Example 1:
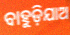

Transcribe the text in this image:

ବାହୁଡ଼ିଯାଅ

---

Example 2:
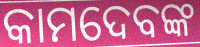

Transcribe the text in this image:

କାମଦେବଙ୍କ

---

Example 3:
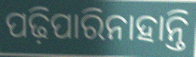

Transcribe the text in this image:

ପଢ଼ିପାରିନାହାନ୍ତି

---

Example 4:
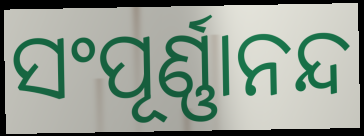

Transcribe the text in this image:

ସଂପୂର୍ଣ୍ଣାନନ୍ଦ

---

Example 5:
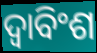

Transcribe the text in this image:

ଦ୍ଵାବିଂଶ